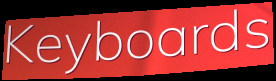
Keyboards